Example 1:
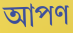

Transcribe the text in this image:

আপণ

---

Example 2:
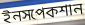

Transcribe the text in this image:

ইনসপেকশান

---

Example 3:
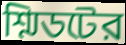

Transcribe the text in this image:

শ্মিডটের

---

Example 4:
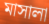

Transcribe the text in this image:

মাসালা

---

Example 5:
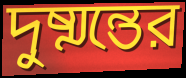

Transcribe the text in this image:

দুষ্মন্তের